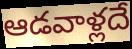
ఆడవాళ్లదే